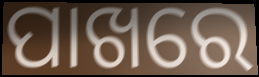
ପାଖରେ